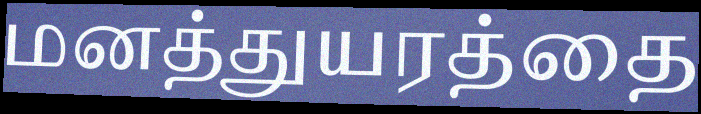
மனத்துயரத்தை